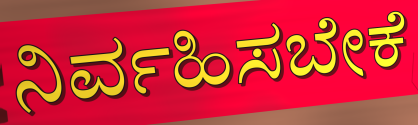
ನಿರ್ವಹಿಸಬೇಕೆ